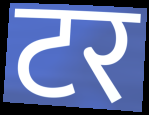
टर